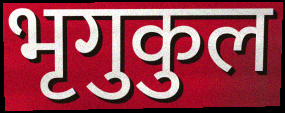
भृगुकुल